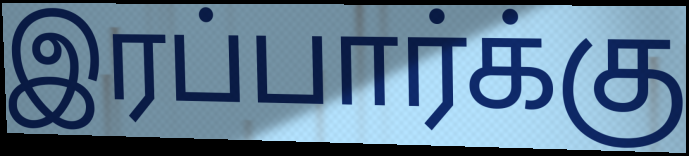
இரப்பார்க்கு